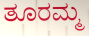
ತೂರಮ್ಮ